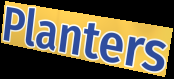
Planters